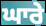
ਘਾਰੇ